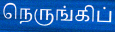
நெருங்கிப்